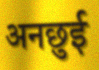
अनछुई